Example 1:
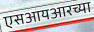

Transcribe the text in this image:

एसआयआरच्या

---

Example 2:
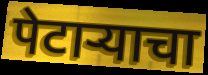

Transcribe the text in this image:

पेटाऱ्याचा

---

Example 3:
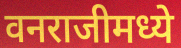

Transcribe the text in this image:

वनराजीमध्ये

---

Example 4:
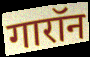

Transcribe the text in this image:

गारॉन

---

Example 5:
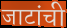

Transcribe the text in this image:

जाटांची